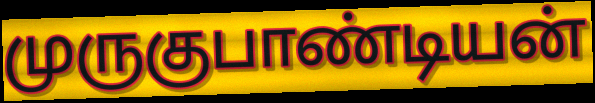
முருகுபாண்டியன்